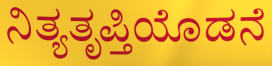
ನಿತ್ಯತೃಪ್ತಿಯೊಡನೆ